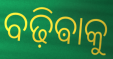
ବଢ଼ିଵାକୁ